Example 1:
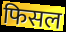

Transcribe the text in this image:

फिसल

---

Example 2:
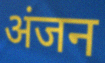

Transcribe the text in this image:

अंजन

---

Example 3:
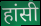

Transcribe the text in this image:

हांसी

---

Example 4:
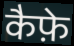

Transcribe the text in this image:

कैफ़े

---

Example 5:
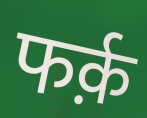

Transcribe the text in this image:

फर्क़